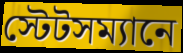
স্টেটসম্যানে